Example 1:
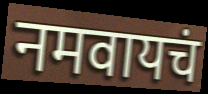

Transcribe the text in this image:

नमवायचं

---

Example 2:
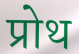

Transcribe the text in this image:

प्रोथ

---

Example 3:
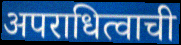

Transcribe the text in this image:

अपराधित्वाची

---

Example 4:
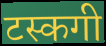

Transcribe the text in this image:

टस्कगी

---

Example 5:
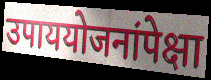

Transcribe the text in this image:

उपाययोजनांपेक्षा